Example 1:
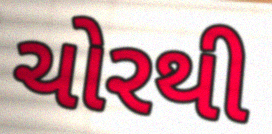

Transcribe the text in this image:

ચોરથી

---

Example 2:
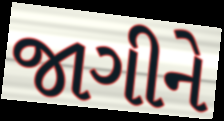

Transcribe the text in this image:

જાગીને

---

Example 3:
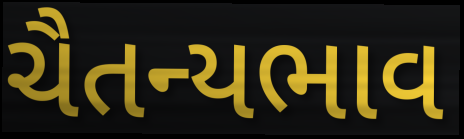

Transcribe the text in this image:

ચૈતન્યભાવ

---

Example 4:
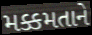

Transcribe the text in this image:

મક્કમતાને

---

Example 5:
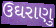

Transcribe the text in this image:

ઉઘરાણુ